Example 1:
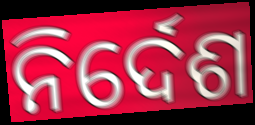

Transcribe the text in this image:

ନିର୍ଦେଶ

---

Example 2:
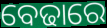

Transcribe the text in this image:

ବେଢାରେ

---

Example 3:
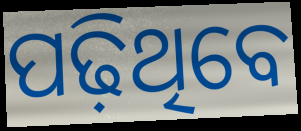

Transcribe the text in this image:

ପଢ଼ିଥିବେ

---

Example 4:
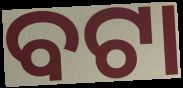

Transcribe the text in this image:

ବଟା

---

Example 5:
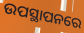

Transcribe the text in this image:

ଉପସ୍ଥାପନରେ